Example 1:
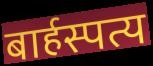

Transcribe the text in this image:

बार्हस्पत्य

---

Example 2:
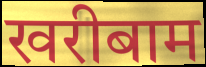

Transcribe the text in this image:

खरीबाम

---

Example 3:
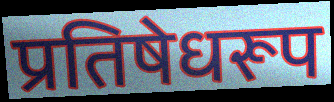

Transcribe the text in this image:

प्रतिषेधरूप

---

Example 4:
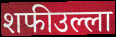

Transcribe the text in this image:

शफीउल्ला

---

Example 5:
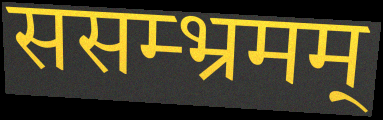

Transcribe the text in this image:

ससम्भ्रमम्